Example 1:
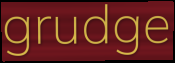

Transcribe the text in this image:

grudge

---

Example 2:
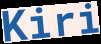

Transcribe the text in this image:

Kiri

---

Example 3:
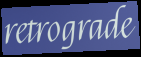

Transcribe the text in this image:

retrograde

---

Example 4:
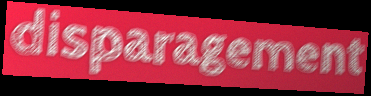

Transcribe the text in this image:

disparagement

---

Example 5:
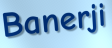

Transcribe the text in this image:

Banerji